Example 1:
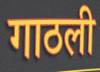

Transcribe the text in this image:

गाठली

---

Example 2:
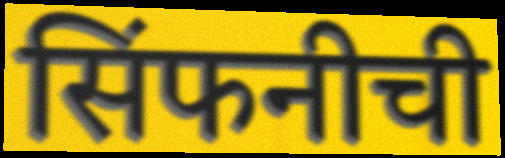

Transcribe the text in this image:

सिंफनीची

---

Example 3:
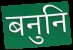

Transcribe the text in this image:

बनुनि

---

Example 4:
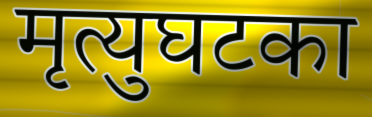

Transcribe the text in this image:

मृत्युघटका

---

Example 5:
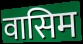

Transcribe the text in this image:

वासिम